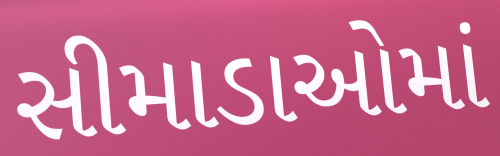
સીમાડાઓમાં